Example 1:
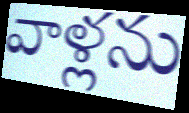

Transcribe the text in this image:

వాళ్లను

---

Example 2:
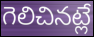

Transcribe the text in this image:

గెలిచినట్లే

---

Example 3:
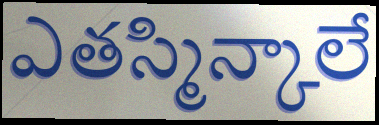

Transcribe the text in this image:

ఎతస్మిన్కాలే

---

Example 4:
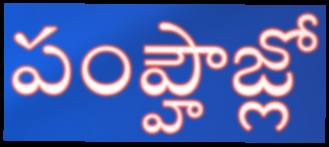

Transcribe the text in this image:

పంప్హౌజ్లో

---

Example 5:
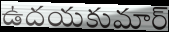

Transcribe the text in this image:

ఉదయకుమార్